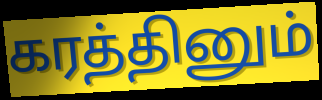
கரத்தினும்